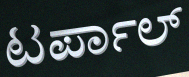
ಟರ್ಪಾಲ್